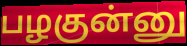
பழகுன்னு